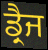
ਡ੍ਰੈਜ